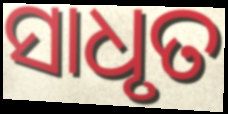
ସାଧୃତ